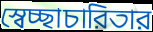
স্বেচ্ছাচারিতার